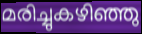
മരിച്ചുകഴിഞ്ഞു